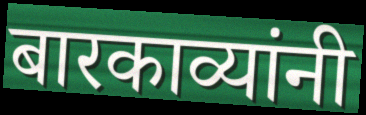
बारकाव्यांनी